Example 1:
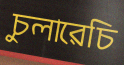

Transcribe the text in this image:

চুলাৱেচি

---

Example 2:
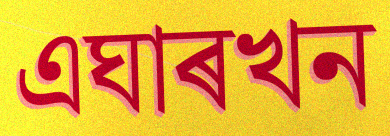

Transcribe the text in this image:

এঘাৰখন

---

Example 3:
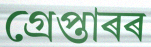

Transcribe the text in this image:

গ্ৰেপ্তাৰৰ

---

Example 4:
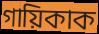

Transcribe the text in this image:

গায়িকাক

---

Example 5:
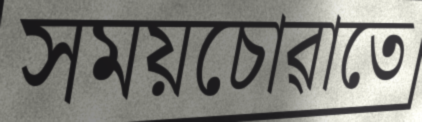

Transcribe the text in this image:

সময়চোৱাতে